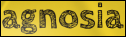
agnosia